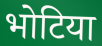
भोटिया